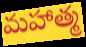
మహాత్మ